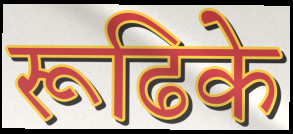
रूढिके